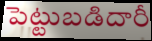
పెట్టుబడిదారీ